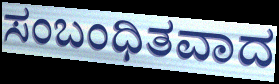
ಸಂಬಂಧಿತವಾದ